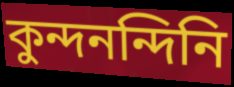
কুন্দনন্দিনি